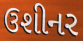
ઉશીનર